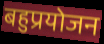
बहुप्रयोजन